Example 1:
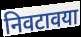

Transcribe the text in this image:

निवटावया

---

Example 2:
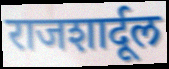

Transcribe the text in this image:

राजशार्दूल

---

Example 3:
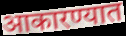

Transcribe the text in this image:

आकारण्यात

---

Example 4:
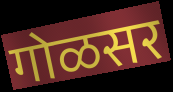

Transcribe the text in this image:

गोळसर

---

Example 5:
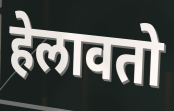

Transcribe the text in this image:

हेलावतो